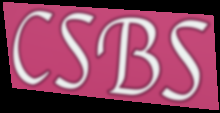
CSBS